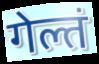
गेल्तं